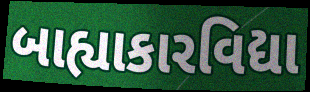
બાહ્યાકારવિદ્યા